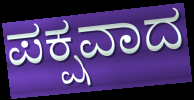
ಪಕ್ಷವಾದ